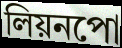
লিয়নপো